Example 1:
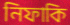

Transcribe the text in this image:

নিফাকি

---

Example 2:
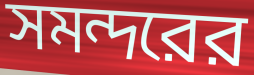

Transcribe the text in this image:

সমন্দরের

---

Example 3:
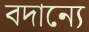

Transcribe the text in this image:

বদান্যে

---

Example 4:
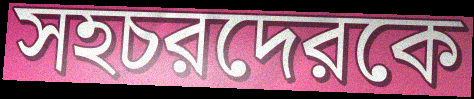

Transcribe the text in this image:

সহচরদেরকে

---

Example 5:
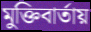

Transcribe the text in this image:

মুক্তিবার্তায়